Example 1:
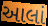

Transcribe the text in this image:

આલાં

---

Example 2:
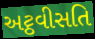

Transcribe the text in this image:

અટ્ઠવીસતિ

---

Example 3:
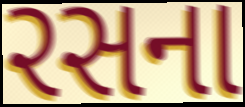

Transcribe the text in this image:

રસના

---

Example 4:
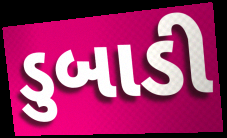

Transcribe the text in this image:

ડુબાડી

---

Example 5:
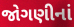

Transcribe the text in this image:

જોગણીનાં